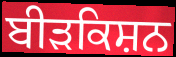
ਬੀੜਕਿਸ਼ਨ